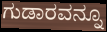
ಗುಡಾರವನ್ನೂ